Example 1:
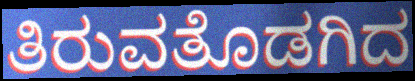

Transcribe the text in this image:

ತಿರುವತೊಡಗಿದ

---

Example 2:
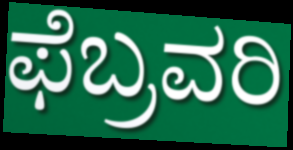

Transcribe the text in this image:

ಫೆಬ್ರವರಿ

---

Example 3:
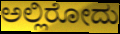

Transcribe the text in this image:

ಅಲ್ಲಿರೋದು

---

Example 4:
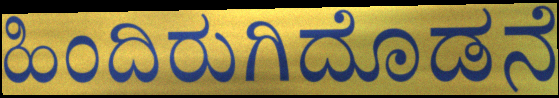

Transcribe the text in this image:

ಹಿಂದಿರುಗಿದೊಡನೆ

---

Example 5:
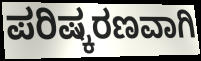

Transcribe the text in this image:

ಪರಿಷ್ಕರಣವಾಗಿ